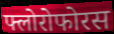
फ्लोरोफोरस